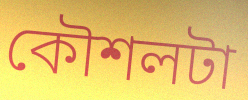
কৌশলটা